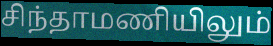
சிந்தாமணியிலும்